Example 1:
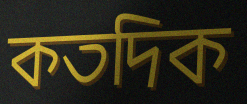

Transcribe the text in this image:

কতদিক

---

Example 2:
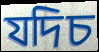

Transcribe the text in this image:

যদিচ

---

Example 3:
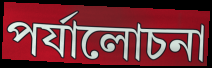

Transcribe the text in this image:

পর্যালোচনা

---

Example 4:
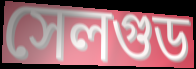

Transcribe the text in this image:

সেলগুড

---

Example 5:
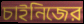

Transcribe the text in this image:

চাইনিজের